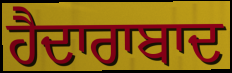
ਹੈਦਾਰਾਬਾਦ